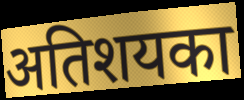
अतिशयका